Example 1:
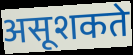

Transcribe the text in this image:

असूशकते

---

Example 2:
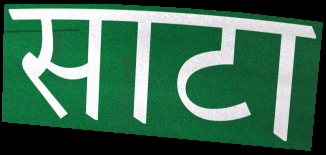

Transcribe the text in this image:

साटा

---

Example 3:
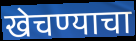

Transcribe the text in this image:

खेचण्याचा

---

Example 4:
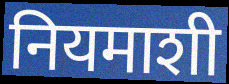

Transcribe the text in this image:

नियमाशी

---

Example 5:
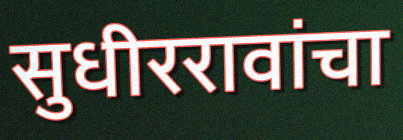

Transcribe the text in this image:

सुधीररावांचा